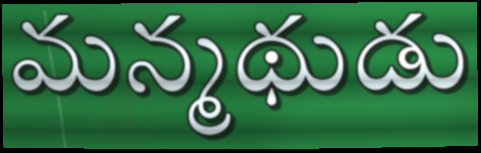
మన్మథుడు